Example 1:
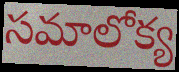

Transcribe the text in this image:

సమాలోక్య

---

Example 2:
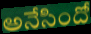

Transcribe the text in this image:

అనేసిందో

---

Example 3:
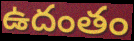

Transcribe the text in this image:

ఉదంతం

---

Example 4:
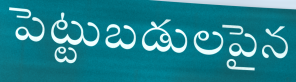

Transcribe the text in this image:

పెట్టుబడులపైన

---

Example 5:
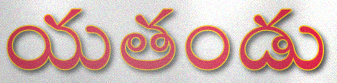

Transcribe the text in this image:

యతండు